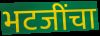
भटजींचा